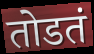
तोडतं